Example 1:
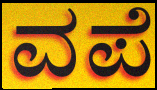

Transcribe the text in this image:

ವಪೆ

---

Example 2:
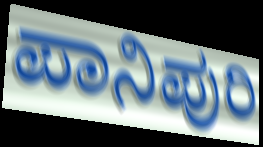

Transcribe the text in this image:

ಪಾನಿಪುರಿ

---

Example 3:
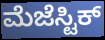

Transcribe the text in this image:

ಮೆಜೆಸ್ಟಿಕ್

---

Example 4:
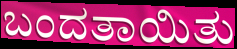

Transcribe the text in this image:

ಬಂದತಾಯಿತು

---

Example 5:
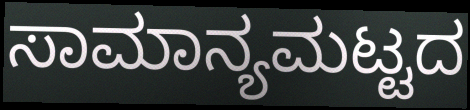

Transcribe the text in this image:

ಸಾಮಾನ್ಯಮಟ್ಟದ